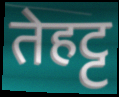
तेहट्ट